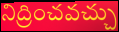
నిద్రించవచ్చు